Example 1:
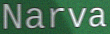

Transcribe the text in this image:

Narva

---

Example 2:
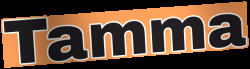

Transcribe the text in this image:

Tamma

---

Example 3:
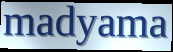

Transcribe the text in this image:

madyama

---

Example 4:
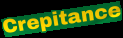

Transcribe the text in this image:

Crepitance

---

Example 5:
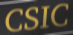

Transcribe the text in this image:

CSIC